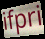
ifpri